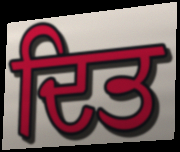
ਦਿਤ